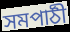
সমপাঠী